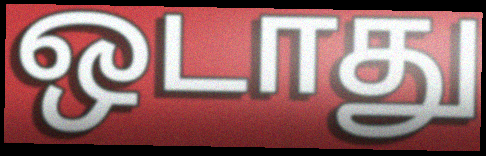
ஒடாது